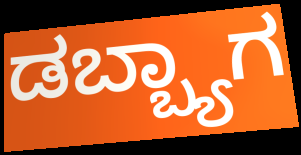
ಡಬ್ಬ್ಯಾಗ